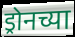
ड्रोनच्या